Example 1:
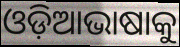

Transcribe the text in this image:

ଓଡ଼ିଆଭାଷାକୁ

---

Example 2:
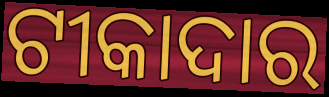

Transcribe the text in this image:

ଟୀକାଦାର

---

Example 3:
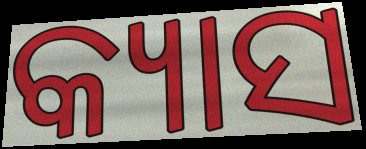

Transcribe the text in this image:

କ୍ୟାସ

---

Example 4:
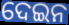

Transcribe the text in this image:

ଦେଇନ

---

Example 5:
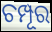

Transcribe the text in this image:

ଚମ୍ପୂର